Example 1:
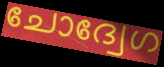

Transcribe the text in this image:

ചോദ്വേഗ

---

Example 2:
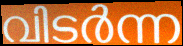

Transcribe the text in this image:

വിടർന്ന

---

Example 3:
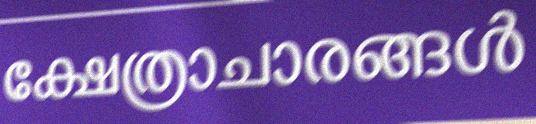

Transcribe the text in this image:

ക്ഷേത്രാചാരങ്ങൾ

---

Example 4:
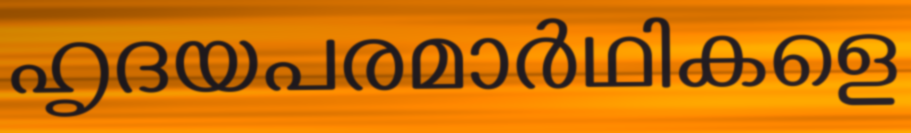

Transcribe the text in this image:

ഹൃദയപരമാർഥികളെ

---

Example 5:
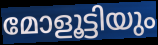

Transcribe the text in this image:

മോളൂട്ടിയും